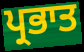
ਪ੍ਰਭਾਤ